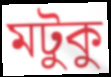
মটুকু